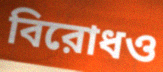
বিরোধও